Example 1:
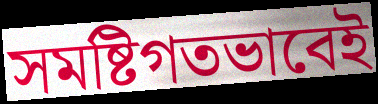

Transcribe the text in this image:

সমষ্টিগতভাবেই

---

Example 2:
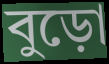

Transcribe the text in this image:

বুড়ো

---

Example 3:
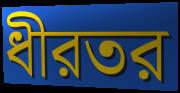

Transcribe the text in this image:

ধীরতর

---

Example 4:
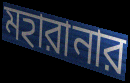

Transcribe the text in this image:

মহারানার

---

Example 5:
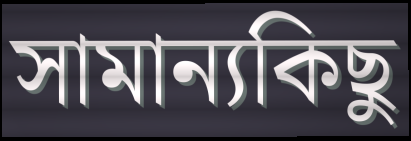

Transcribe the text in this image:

সামান্যকিছু